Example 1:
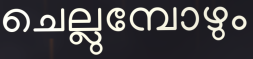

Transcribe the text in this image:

ചെല്ലുമ്പോഴും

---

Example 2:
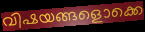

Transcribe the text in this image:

വിഷയങ്ങളൊക്കെ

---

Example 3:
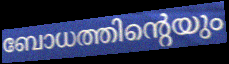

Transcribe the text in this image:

ബോധത്തിന്റെയും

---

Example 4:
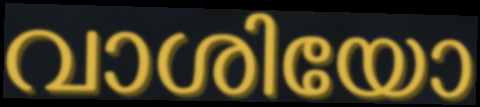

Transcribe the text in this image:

വാശിയോ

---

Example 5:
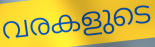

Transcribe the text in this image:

വരകളുടെ